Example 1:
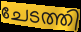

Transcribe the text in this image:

ചേടത്തി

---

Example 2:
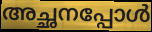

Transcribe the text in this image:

അച്ഛനപ്പോൾ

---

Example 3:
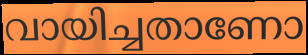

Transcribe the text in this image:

വായിച്ചതാണോ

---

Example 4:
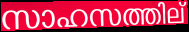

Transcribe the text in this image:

സാഹസത്തില്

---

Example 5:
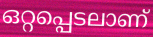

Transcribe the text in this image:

ഒറ്റപ്പെടലാണ്